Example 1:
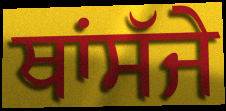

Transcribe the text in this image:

ਥਾਂਸੱਜੇ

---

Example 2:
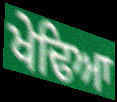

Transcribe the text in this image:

ਖੇਢਿਆ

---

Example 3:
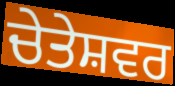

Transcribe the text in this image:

ਚੇਤੇਸ਼ਵਰ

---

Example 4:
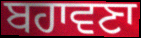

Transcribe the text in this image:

ਬਹਾਵਣਾ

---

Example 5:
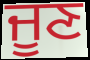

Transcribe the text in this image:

ਜੂਣ